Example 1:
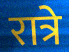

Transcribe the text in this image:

रात्रे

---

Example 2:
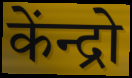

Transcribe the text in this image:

केंन्द्रो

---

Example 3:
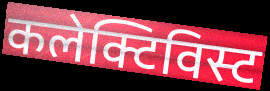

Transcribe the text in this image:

कलेक्टिविस्ट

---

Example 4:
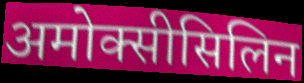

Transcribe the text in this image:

अमोक्सीसिलिन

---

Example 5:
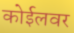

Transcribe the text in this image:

कोईलवर